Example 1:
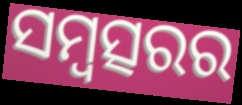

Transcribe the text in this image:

ସମ୍ବତ୍ସରର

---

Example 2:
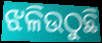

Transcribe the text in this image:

ଝଳିଉଠୁଛି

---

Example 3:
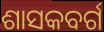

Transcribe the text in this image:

ଶାସକବର୍ଗ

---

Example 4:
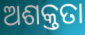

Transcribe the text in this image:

ଅଶକ୍ତତା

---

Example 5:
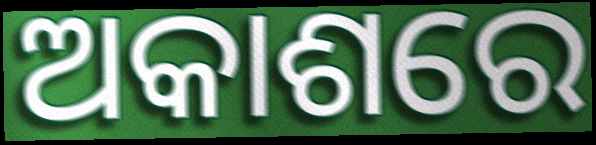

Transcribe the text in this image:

ଅକାଶରେ